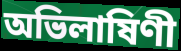
অভিলাষিণী